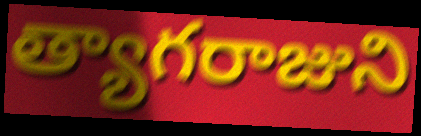
త్యాగరాజుని